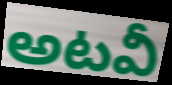
అటవీ